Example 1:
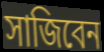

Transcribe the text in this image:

সাজিবেন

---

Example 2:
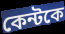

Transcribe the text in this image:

কেন্টকে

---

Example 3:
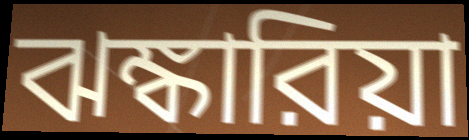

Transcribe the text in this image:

ঝঙ্কারিয়া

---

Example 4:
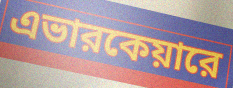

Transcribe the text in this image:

এভারকেয়ারে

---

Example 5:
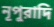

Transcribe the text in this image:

নূপুরাদি